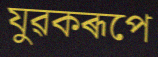
যুৱকৰূপে